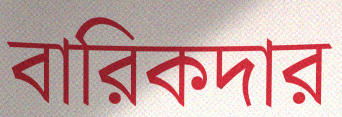
বারিকদার